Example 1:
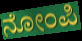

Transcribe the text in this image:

ನೋಂಪಿ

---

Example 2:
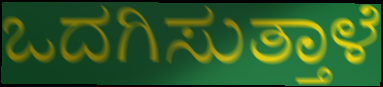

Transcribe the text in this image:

ಒದಗಿಸುತ್ತಾಳೆ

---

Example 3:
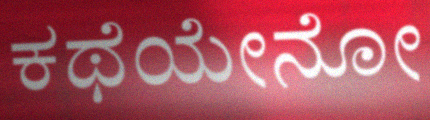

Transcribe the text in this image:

ಕಥೆಯೇನೋ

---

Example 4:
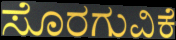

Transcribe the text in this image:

ಸೊರಗುವಿಕೆ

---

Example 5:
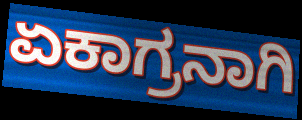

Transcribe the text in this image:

ಏಕಾಗ್ರನಾಗಿ